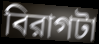
বিরাগটা